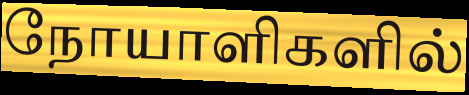
நோயாளிகளில்